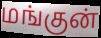
மங்குன்